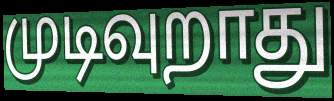
முடிவுறாது